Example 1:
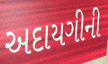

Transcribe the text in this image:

અદાયગીની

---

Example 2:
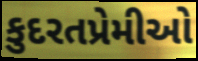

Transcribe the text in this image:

કુદરતપ્રેમીઓ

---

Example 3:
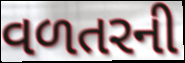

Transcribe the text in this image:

વળતરની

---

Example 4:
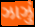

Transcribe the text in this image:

ઝાઝું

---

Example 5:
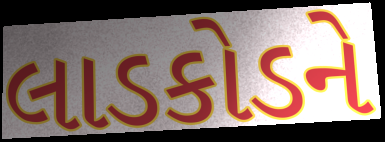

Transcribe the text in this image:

લાડકોડને